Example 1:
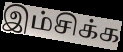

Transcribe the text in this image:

இம்சிக்க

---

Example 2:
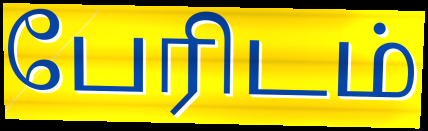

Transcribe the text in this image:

பேரிடம்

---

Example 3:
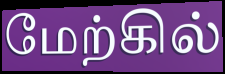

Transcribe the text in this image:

மேற்கில்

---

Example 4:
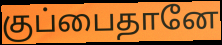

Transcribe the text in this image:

குப்பைதானே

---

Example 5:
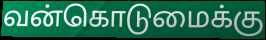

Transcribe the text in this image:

வன்கொடுமைக்கு